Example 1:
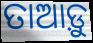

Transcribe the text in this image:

ତାଆଡ଼ୁ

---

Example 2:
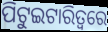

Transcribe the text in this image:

ପିଟୁଇଟାରିତ୍ୱରେ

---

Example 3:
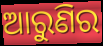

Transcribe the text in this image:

ଆରୁଣିର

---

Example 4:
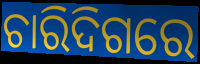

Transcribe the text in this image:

ଚାରିଦିଗରେ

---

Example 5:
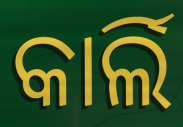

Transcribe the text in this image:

କାର୍ଲି